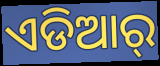
ଏଡିଆର୍